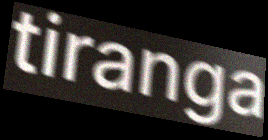
tiranga